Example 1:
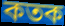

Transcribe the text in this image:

কতক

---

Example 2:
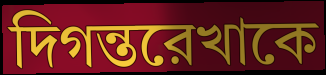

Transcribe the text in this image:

দিগন্তরেখাকে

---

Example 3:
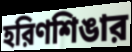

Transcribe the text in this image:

হরিণশিঙার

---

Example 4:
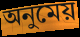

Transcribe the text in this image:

অনুমেয়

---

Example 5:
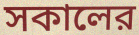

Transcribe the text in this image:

সকালের